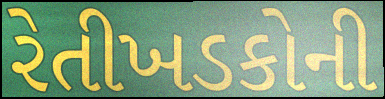
રેતીખડકોની